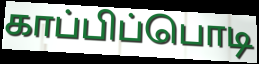
காப்பிப்பொடி